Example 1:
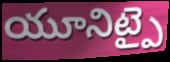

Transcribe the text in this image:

యూనిట్పై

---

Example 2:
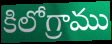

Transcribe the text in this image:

కిలోగ్రాము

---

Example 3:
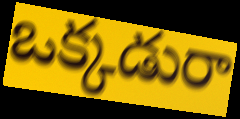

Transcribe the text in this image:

ఒక్కడురా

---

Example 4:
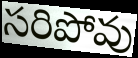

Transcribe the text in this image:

సరిపోవు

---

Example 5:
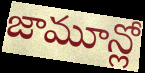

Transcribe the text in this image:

జామూన్లో